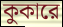
কুকারে